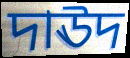
দাঊদ